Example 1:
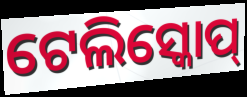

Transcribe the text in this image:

ଟେଲିସ୍କୋପ୍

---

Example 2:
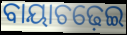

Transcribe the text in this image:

ବାୟାଚଢ଼େଇ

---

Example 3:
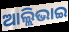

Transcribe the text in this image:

ଆଲ୍ଲିଭାଇ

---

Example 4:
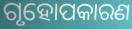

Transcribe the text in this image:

ଗୃହୋପକାରଣ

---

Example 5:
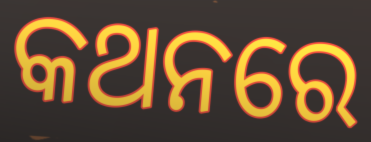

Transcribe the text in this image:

କଥନରେ